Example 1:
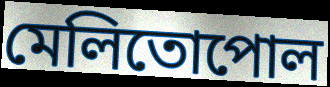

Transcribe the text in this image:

মেলিতোপোল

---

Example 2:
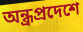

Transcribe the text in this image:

অন্ধ্রপ্রদেশে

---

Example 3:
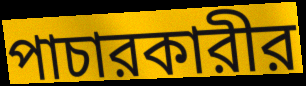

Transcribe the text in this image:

পাচারকারীর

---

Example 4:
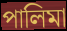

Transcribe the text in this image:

পালিমা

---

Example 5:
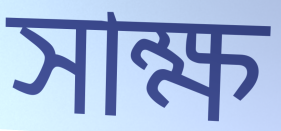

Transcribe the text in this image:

সাক্ষ